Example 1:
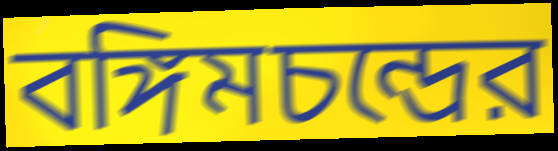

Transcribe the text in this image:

বঙ্গিমচন্দ্রের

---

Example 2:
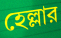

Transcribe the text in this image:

হেল্লার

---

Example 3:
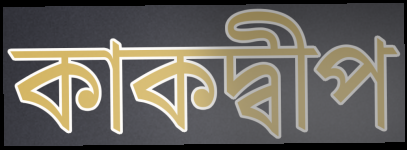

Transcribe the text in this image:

কাকদ্বীপ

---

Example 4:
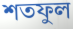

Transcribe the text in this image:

শতফুল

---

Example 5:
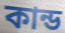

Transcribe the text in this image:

কান্ড